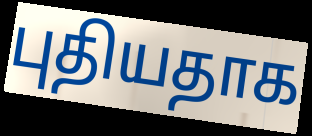
புதியதாக